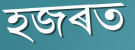
হজৰত